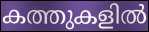
കത്തുകളിൽ